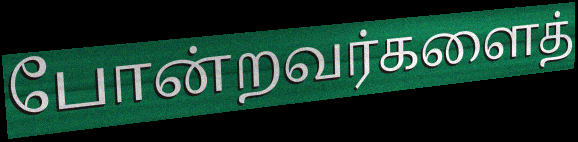
போன்றவர்களைத்